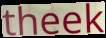
theek